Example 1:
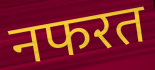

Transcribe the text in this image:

नफरत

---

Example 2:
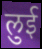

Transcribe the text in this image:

लुई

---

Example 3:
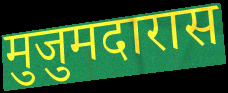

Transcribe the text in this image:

मुजुमदारास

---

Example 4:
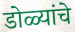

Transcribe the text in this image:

डोळ्यांचे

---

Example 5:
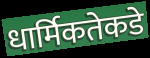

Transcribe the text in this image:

धार्मिकतेकडे